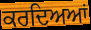
ਕਰਦਿਅਆਂ